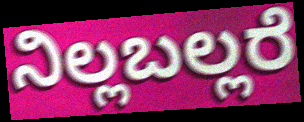
ನಿಲ್ಲಬಲ್ಲರೆ